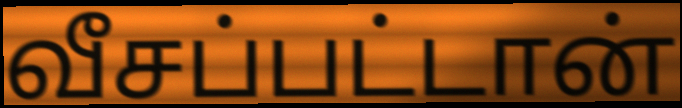
வீசப்பட்டான்